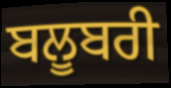
ਬਲੂਬਰੀ